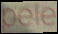
pele